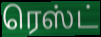
ரெஸ்ட்